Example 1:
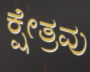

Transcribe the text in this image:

ಕ್ಷೇತ್ರವು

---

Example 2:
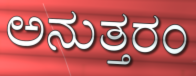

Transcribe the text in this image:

ಅನುತ್ತರಂ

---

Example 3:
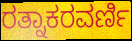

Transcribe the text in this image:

ರತ್ನಾಕರವರ್ಣಿ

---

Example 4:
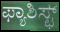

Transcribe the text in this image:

ಫ್ಯಾಶಿಸ್ಟ್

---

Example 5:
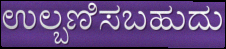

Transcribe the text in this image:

ಉಲ್ಬಣಿಸಬಹುದು